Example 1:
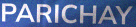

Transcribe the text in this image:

PARICHAY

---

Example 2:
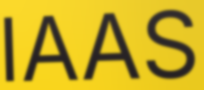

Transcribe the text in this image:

IAAS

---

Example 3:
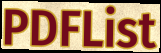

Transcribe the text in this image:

PDFList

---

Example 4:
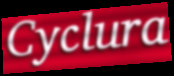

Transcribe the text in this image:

Cyclura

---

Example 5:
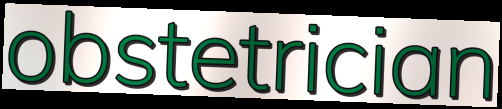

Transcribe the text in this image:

obstetrician